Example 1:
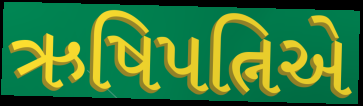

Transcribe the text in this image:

ઋષિપત્નિએ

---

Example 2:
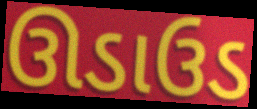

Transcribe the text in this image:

ઊડાઉડ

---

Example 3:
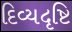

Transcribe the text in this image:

દિવ્યદૃષ્ટિ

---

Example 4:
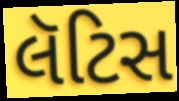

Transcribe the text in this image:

લૅટિસ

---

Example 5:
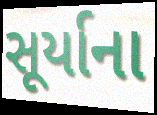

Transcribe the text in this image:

સૂર્યાના